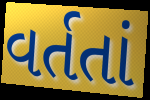
વર્તતાં